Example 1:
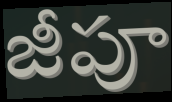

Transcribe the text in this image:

జీపూ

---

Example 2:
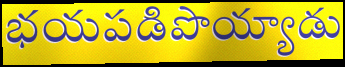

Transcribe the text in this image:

భయపడిపొయ్యాడు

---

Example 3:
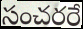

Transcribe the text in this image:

సంచరరే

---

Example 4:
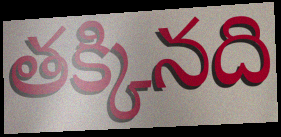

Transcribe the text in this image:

తక్కినది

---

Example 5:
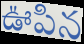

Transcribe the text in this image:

ఊపిన